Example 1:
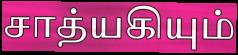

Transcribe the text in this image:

சாத்யகியும்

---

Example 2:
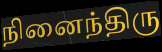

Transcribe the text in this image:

நினைந்திரு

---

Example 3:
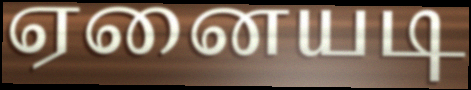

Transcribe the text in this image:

ஏனையடி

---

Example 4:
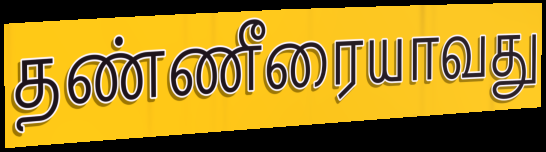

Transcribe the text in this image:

தண்ணீரையாவது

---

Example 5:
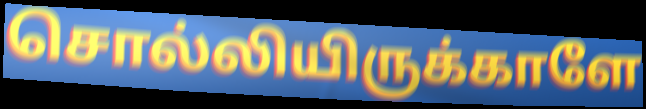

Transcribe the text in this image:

சொல்லியிருக்காளே